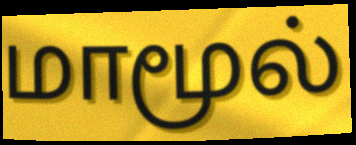
மாமூல்